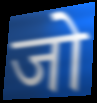
जो